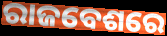
ରାଜବେଶରେ